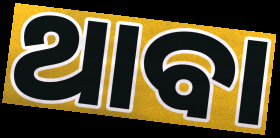
ଥାବା